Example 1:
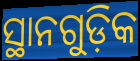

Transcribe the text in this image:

ସ୍ଥାନଗୁଡ଼ିକ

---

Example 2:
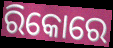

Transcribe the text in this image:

ରିକୋରେ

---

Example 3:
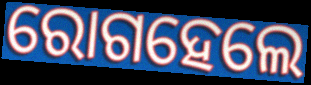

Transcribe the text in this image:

ରୋଗହେଲେ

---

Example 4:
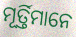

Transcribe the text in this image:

ମୂର୍ତ୍ତିମାନେ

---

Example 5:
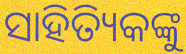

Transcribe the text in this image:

ସାହିତ୍ୟିକଙ୍କୁ